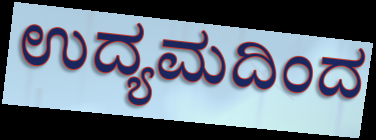
ಉದ್ಯಮದಿಂದ